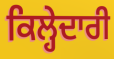
ਕਿਲ੍ਹੇਦਾਰੀ